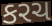
કરચ